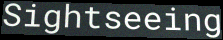
Sightseeing